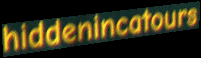
hiddenincatours